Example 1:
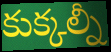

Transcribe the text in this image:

కుక్కల్నీ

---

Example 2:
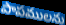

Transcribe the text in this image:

పాపములను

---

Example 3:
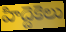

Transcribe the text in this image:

హిద్దెకెలు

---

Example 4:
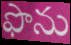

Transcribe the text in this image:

ఫొను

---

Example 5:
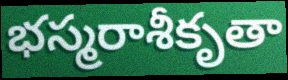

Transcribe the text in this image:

భస్మరాశీకృతా